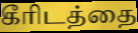
கீரிடத்தை